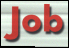
Job